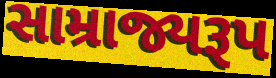
સામ્રાજ્યરૂપ